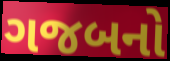
ગજબનો